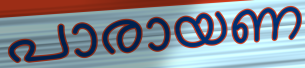
പാരായണ